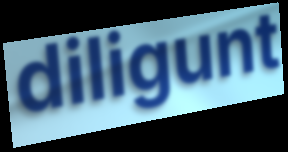
diligunt